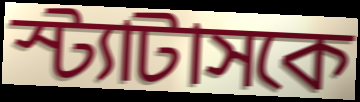
স্ট্যাটাসকে